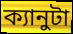
ক্যানুটা